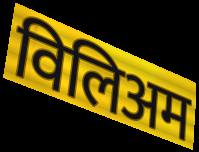
विलिअम